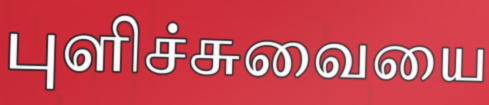
புளிச்சுவையை